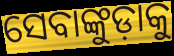
ସେବାଙ୍କୁଡ଼ାକୁ